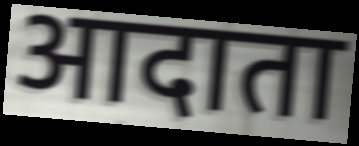
आदाता